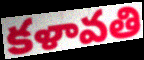
కళావతి